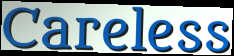
Careless